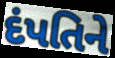
દંપતિને